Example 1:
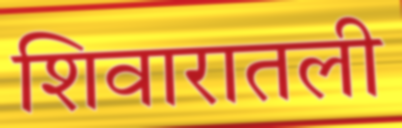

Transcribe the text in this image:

शिवारातली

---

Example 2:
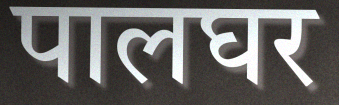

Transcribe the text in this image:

पालघर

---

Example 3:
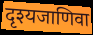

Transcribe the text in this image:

दृश्यजाणिवा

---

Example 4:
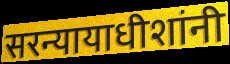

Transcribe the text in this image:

सरन्यायाधीशांनी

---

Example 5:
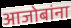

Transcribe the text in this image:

आजोबांना